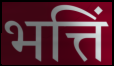
भत्तिं